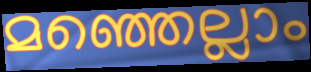
മഞ്ഞെല്ലാം